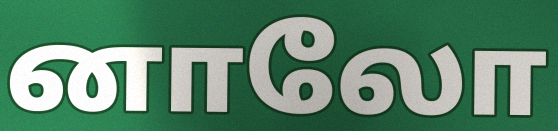
னாலோ